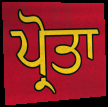
ਪ੍ਰੋਤਾ